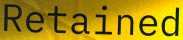
Retained